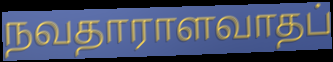
நவதாராளவாதப்